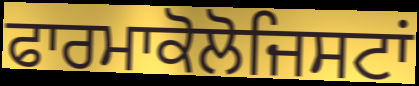
ਫਾਰਮਾਕੋਲੋਜਿਸਟਾਂ